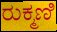
ರುಕ್ಮಣಿ